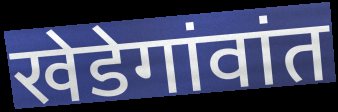
खेडेगांवांत